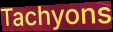
Tachyons